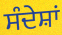
ਸੰਦੇਸ਼ਾਂ